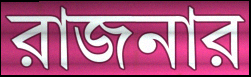
রাজনার